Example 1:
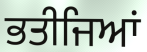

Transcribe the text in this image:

ਭਤੀਜਿਆਂ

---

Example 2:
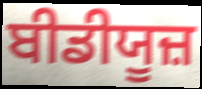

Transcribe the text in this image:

ਬੀਡੀਯੂਜ਼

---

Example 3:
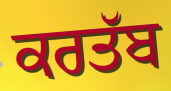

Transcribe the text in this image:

ਕਰਤੱਬ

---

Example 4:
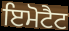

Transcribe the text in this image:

ਇਮੋਟੈਟ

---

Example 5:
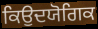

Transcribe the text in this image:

ਕਿਉਦਯੋਗਿਕ